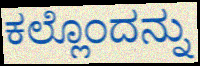
ಕಲ್ಲೊಂದನ್ನು